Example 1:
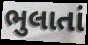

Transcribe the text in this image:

ભુલાતાં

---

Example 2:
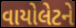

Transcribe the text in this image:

વાયોલેટને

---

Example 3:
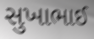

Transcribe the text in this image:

સુખાભાઈ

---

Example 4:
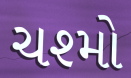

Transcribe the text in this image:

ચશ્મો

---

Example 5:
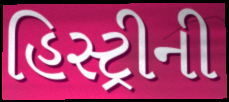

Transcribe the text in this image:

હિસ્ટ્રીની